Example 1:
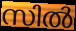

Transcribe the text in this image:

സിൽ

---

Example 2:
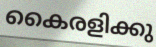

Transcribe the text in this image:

കൈരളിക്കു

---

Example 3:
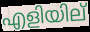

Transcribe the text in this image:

എളിയില്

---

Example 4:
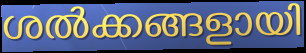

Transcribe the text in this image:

ശൽക്കങ്ങളായി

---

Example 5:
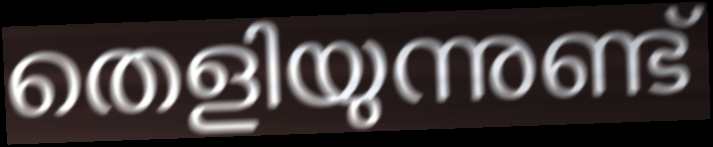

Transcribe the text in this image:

തെളിയുന്നുണ്ട്